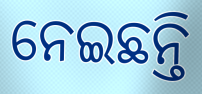
ନେଇଛନ୍ତି